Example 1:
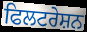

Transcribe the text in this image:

ਫਿਲਟਰੇਸ਼ਨ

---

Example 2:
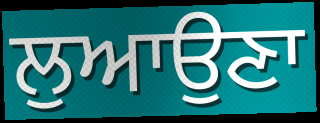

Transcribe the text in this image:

ਲੁਆਉਣਾ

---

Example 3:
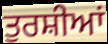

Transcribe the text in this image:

ਤੁਰਸ਼ੀਆਂ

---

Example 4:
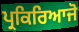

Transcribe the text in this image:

ਪ੍ਰਕਿਰਿਆਜੋ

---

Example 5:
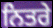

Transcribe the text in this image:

ਨਿਤਰੇ